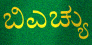
ಬಿಎಚ್ಯು